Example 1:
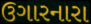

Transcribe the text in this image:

ઉગારનારા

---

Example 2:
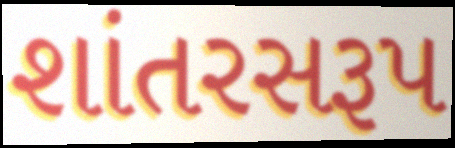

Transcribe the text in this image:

શાંતરસરૂપ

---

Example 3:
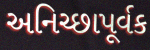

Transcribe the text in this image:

અનિચ્છાપૂર્વક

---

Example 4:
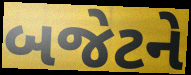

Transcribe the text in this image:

બજેટને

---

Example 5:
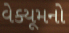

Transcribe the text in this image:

વેક્યૂમનો